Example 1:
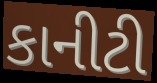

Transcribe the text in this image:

કાનીટી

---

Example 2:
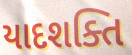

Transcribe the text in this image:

યાદશક્તિ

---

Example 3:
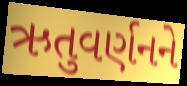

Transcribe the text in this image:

ઋતુવર્ણનને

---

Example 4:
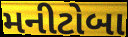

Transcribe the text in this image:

મનીટોબા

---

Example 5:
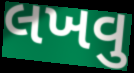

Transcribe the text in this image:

લખવુ